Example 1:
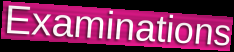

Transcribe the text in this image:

Examinations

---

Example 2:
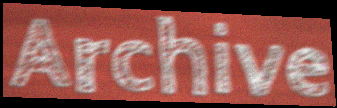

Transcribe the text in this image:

Archive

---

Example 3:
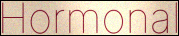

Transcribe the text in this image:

Hormonal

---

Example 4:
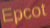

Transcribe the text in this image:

Epcot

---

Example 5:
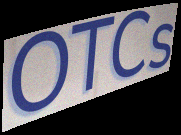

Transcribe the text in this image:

OTCs